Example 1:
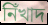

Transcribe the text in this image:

নিঁখাদ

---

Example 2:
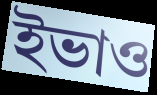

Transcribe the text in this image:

ইভাও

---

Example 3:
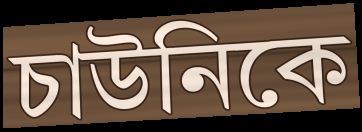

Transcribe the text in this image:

চাউনিকে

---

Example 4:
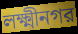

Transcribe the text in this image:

লক্ষ্মীনগর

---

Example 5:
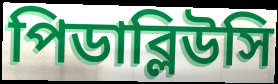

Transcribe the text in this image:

পিডাব্লিউসি